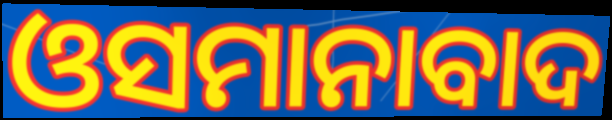
ଓସମାନାବାଦ